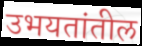
उभयतांतील